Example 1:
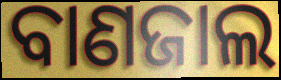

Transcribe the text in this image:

ବାଣଜାଲ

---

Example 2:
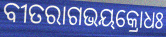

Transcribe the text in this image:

ବୀତରାଗଭୟକ୍ରୋଧଃ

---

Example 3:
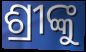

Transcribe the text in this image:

ଶ୍ରୀଙ୍କୁ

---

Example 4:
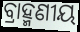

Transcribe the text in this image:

ବ୍ରାହ୍ମଣୀୟ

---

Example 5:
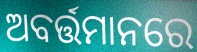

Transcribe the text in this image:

ଅବର୍ତ୍ତମାନରେ